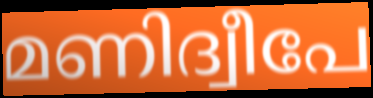
മണിദ്വീപേ